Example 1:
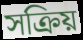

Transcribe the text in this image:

সক্রিয়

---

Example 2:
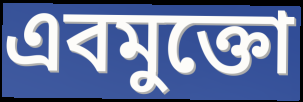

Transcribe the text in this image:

এবমুক্তো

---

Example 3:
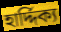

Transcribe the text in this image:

হার্দ্দিক্য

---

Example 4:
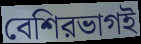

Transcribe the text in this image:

বেশিরভাগই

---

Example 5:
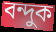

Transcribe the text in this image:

বন্দুক